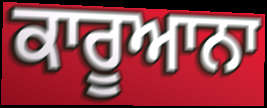
ਕਾਰੂਆਨਾ